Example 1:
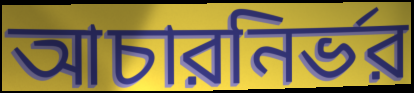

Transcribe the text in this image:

আচারনির্ভর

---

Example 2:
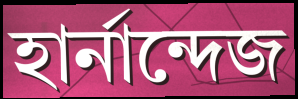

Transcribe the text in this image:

হার্নান্দেজ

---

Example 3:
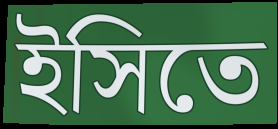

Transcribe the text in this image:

ইসিতে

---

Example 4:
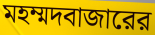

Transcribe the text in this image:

মহম্মদবাজারের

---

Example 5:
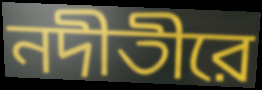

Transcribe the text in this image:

নদীতীরে